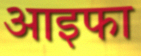
आइफा